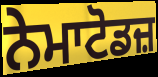
ਨੇਮਾਟੋਡਜ਼